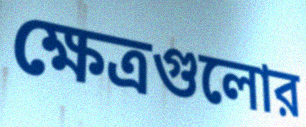
ক্ষেত্রগুলোর